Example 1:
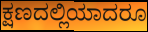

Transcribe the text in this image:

ಕ್ಷಣದಲ್ಲಿಯಾದರೂ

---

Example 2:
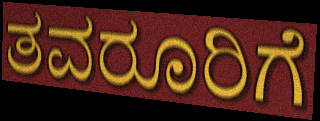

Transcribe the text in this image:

ತವರೂರಿಗೆ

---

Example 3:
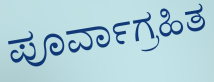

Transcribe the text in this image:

ಪೂರ್ವಾಗ್ರಹಿತ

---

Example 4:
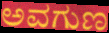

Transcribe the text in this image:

ಅವಗುಣ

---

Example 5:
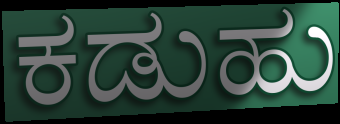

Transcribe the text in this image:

ಕಡುಹು